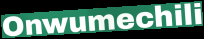
Onwumechili